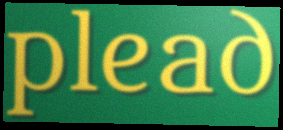
plead